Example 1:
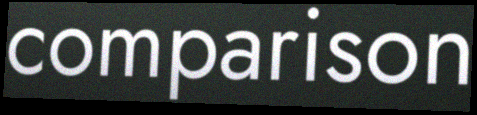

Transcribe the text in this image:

comparison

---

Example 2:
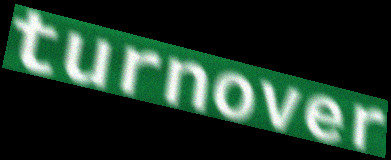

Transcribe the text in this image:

turnover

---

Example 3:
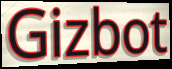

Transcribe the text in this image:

Gizbot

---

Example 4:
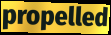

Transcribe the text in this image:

propelled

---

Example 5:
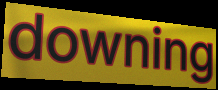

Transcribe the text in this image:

downing